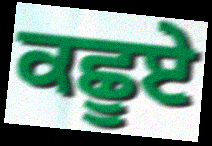
ਕਛੂਏ